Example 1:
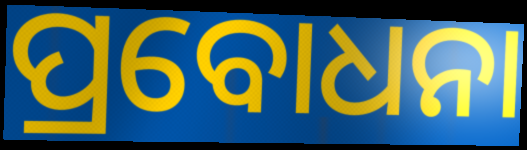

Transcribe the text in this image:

ପ୍ରବୋଧନା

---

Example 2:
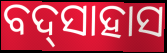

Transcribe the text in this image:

ବଦ୍‌ସାହାସ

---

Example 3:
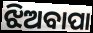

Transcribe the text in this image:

ଝିଅବାପା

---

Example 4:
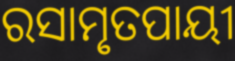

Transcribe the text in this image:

ରସାମୃତପାୟୀ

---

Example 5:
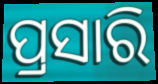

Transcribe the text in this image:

ପ୍ରସାରି